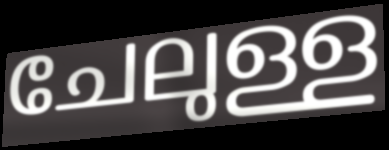
ചേലുള്ള